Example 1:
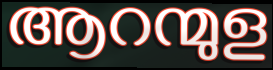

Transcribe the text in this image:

ആറന്മുള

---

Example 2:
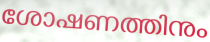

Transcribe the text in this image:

ശോഷണത്തിനും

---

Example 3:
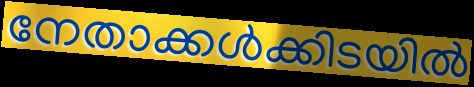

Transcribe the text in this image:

നേതാക്കൾക്കിടയിൽ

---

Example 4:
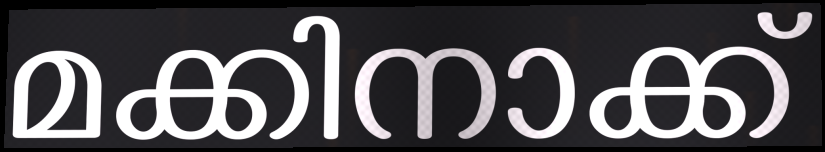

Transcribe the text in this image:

മക്കിനാക്ക്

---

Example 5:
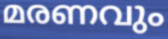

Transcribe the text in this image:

മരണവും